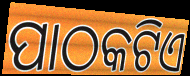
ପାଠକଟିଏ